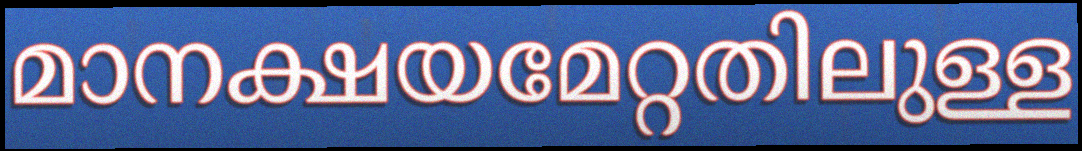
മാനക്ഷയമേറ്റതിലുള്ള